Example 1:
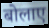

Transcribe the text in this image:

बोलाए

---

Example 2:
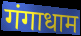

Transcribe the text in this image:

गंगाधाम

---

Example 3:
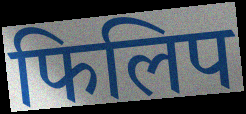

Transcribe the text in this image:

फिलिप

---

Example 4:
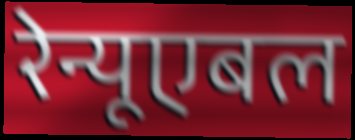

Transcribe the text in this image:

रेन्यूएबल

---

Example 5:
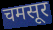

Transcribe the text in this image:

चमसूर